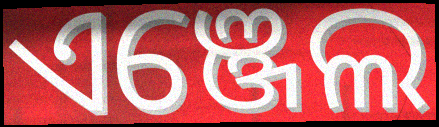
ଏଞ୍ଜେଲ